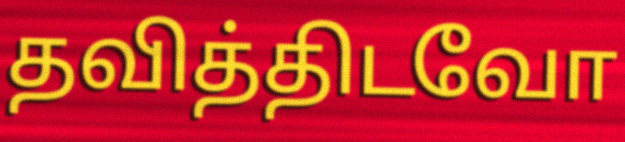
தவித்திடவோ